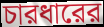
চারধারের